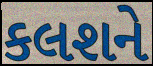
કલશને